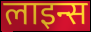
लाइन्स